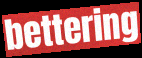
bettering